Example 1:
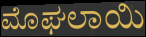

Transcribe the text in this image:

ಮೊಘಲಾಯಿ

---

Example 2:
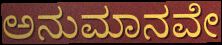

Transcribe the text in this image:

ಅನುಮಾನವೇ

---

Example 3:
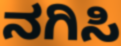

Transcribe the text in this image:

ನಗಿಸಿ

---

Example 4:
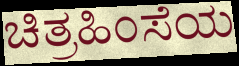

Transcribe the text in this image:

ಚಿತ್ರಹಿಂಸೆಯ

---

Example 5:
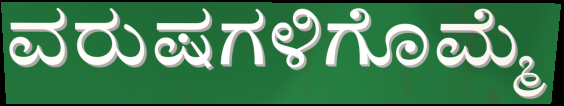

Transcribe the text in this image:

ವರುಷಗಳಿಗೊಮ್ಮೆ